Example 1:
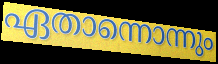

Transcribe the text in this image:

ഏതാന്നൊന്നും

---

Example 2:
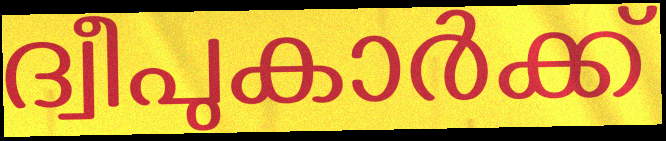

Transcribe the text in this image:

ദ്വീപുകാർക്ക്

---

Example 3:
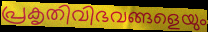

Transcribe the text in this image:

പ്രകൃതിവിഭവങ്ങളെയും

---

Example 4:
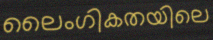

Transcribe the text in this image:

ലൈംഗികതയിലെ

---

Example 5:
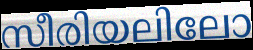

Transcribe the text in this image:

സീരിയലിലോ